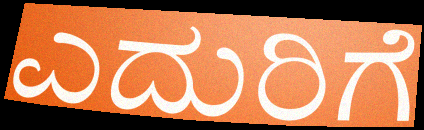
ಎದುರಿಗೆ